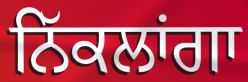
ਨਿੱਕਲਾਂਗਾ